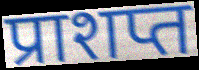
प्राशप्त